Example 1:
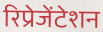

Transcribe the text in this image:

रिप्रेजेंटेशन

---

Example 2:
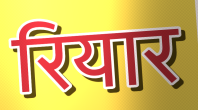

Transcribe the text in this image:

रियार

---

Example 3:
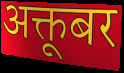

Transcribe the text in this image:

अक्तूबर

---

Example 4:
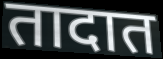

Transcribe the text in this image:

तादात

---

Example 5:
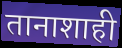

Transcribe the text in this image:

तानाशाही